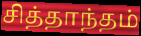
சித்தாந்தம்